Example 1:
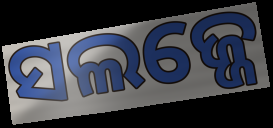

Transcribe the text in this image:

ସଲଜ୍ଜେ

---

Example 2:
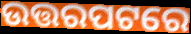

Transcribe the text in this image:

ଉତ୍ତରପଟରେ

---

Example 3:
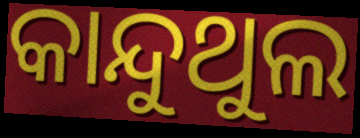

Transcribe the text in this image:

କାନ୍ଦୁଥୁଲ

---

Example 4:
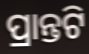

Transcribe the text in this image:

ପ୍ରାନ୍ତଟି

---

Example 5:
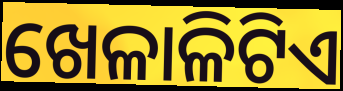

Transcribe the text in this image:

ଖେଳାଳିଟିଏ